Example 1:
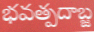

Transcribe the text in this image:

భవత్పదాబ్జ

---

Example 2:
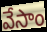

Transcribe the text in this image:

వేసాం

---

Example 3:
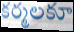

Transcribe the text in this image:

కర్మలకూ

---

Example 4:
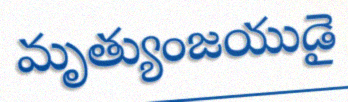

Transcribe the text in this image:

మృత్యుంజయుడై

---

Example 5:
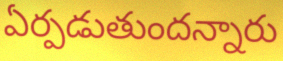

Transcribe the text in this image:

ఏర్పడుతుందన్నారు